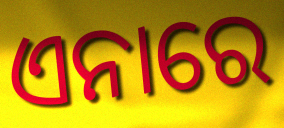
ଏନାରେ